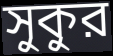
সুকুর